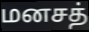
மனசத்